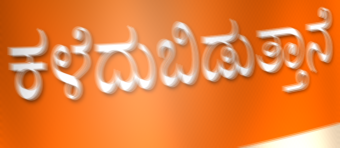
ಕಳೆದುಬಿಡುತ್ತಾನೆ